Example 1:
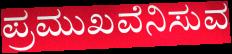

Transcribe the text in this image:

ಪ್ರಮುಖವೆನಿಸುವ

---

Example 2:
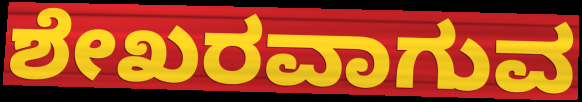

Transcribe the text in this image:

ಶೇಖರವಾಗುವ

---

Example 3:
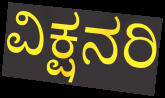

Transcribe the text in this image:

ವಿಕ್ಷನರಿ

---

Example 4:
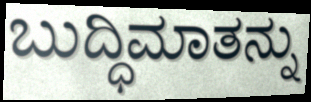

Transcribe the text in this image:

ಬುದ್ಧಿಮಾತನ್ನು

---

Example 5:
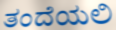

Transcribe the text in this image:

ತಂದೆಯಲಿ